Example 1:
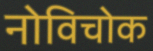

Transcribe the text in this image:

नोविचोक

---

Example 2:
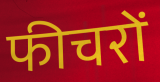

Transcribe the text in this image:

फीचरों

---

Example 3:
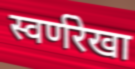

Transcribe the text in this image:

स्वर्णरेखा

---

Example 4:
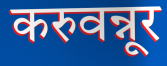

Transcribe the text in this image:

करुवन्नूर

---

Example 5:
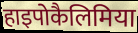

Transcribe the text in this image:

हाइपोकैलिमिया